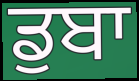
ਡੁਬਾ